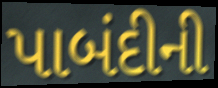
પાબંદીની